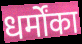
धर्मोंका